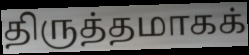
திருத்தமாகக்